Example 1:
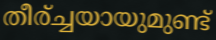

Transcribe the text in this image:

തീര്ച്ചയായുമുണ്ട്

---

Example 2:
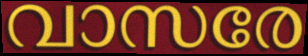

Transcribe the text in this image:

വാസരേ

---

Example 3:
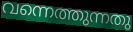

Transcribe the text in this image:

വന്നെത്തുന്നതു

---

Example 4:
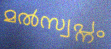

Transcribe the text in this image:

മൽസ്വപ്നം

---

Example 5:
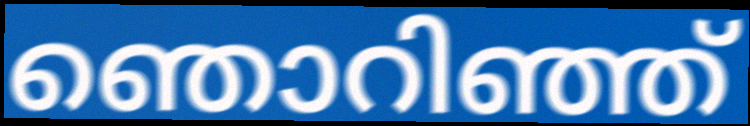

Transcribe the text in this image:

ഞൊറിഞ്ഞ്